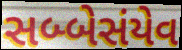
સબ્બેસંયેવ